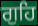
ਗੁਹਿ